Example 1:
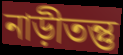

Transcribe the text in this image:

নাড়ীতন্তু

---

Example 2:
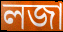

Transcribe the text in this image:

লজা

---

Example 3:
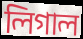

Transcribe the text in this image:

লিগাল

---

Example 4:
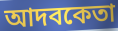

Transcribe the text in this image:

আদবকেতা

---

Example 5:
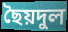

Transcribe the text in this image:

ছৈয়দুল